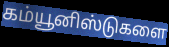
கம்யூனிஸ்டுகளை